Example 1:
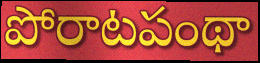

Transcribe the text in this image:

పోరాటపంథా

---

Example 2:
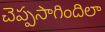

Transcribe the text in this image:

చెప్పసాగిందిలా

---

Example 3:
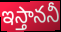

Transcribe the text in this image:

ఇస్తాననీ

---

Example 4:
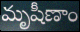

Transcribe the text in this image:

మృషీణాం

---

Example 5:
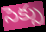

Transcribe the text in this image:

సెక్సు